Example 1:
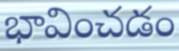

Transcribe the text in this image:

భావించడం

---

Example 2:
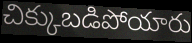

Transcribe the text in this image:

చిక్కుబడిపోయారు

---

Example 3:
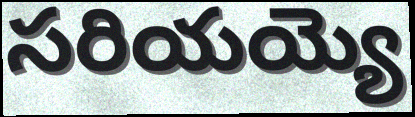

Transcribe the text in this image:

సరియయ్యె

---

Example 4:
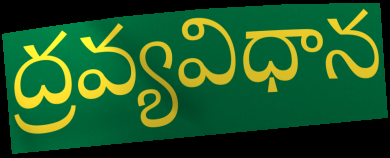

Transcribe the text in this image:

ద్రవ్యవిధాన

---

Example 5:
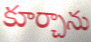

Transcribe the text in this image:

కూర్చాను